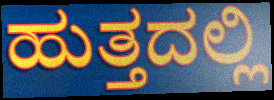
ಹುತ್ತದಲ್ಲಿ